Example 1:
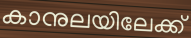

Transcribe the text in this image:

കാനുലയിലേക്ക്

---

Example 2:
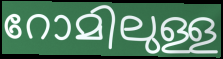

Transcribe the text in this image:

റോമിലുള്ള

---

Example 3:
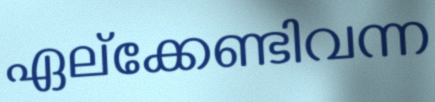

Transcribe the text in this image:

ഏല്ക്കേണ്ടിവന്ന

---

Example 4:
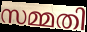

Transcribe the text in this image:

സമ്മതി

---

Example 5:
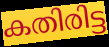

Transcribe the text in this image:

കതിരിട്ട